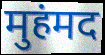
मुहंमद